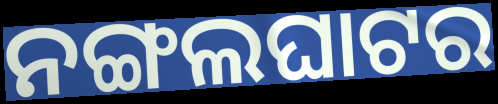
ନଙ୍ଗଲଘାଟର